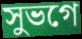
সুভগে